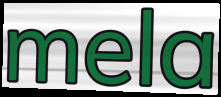
mela